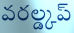
వరల్డ్కప్